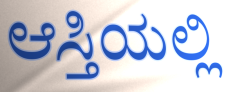
ಆಸ್ತಿಯಲ್ಲಿ